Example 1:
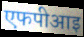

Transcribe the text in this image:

एफपीआइ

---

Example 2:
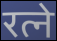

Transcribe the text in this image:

रत्ने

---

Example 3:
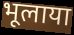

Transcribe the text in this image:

भूलाया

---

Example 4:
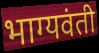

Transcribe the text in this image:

भाग्यवंती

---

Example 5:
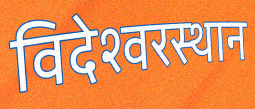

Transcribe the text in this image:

विदेश्वरस्थान